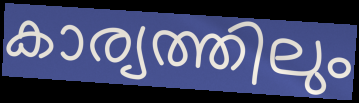
കാര്യത്തിലും